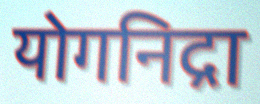
योगनिद्रा